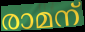
രാമന്